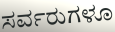
ಸರ್ವರುಗಳೂ